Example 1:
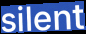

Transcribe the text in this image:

silent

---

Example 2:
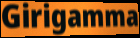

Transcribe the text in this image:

Girigamma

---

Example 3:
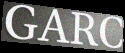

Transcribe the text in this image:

GARC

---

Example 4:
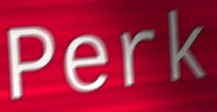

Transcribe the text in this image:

Perk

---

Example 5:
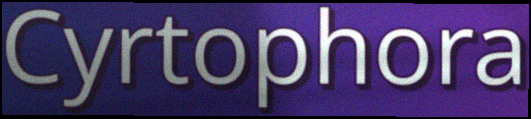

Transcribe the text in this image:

Cyrtophora